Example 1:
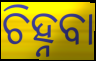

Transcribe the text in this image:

ଚିହ୍ନବା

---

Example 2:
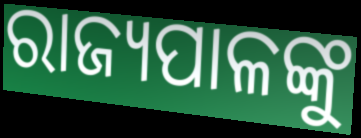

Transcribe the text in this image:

ରାଜ୍ୟପାଳଙ୍କୁ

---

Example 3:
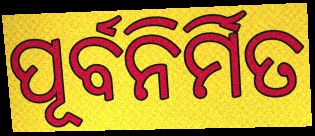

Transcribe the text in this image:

ପୂର୍ବନିର୍ମିତ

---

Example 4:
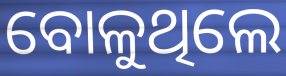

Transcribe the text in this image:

ବୋଳୁଥିଲେ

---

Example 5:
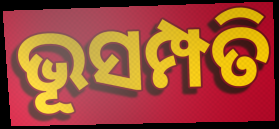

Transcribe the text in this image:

ଭୂସମ୍ପତି